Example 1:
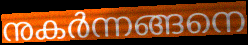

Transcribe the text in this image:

നുകർന്നങ്ങനെ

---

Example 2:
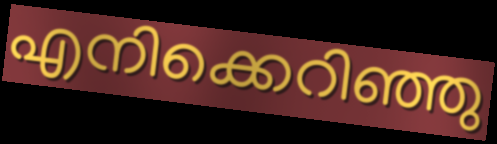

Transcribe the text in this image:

എനിക്കെറിഞ്ഞു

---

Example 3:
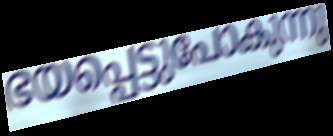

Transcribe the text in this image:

ഭയപ്പെട്ടുപോകുന്നു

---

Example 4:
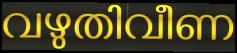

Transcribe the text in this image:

വഴുതിവീണ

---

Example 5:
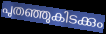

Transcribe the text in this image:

പുതഞ്ഞുകിടക്കും